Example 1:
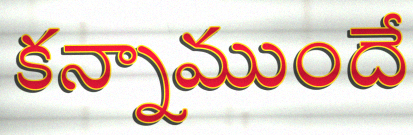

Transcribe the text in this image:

కన్నాముందే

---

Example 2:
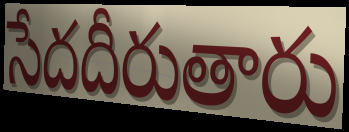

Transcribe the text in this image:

సేదదీరుతారు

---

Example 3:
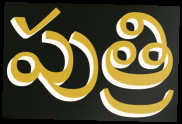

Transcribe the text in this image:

పుత్రి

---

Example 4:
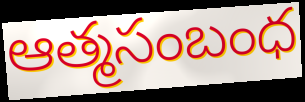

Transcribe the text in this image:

ఆత్మసంబంధ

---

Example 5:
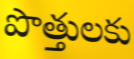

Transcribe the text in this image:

పొత్తులకు